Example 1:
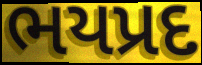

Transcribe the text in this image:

ભયપ્રદ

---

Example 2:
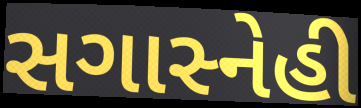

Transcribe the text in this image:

સગાસ્નેહી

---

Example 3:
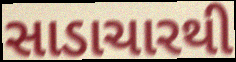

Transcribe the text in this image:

સાડાચારથી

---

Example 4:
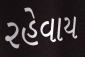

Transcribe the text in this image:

રહેવાય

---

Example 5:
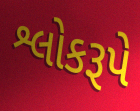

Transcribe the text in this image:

શ્લોકરૂપે